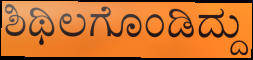
ಶಿಥಿಲಗೊಂಡಿದ್ದು